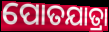
ପୋତଯାତ୍ରା